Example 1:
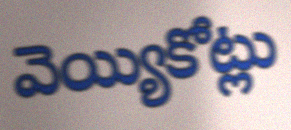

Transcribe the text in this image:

వెయ్యికోట్లు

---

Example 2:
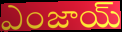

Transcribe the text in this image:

ఎంజాయ్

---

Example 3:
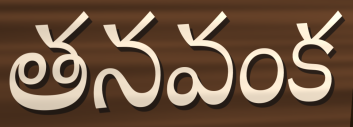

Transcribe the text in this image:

తనవంక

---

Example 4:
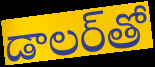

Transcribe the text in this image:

డాలర్‌తో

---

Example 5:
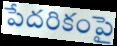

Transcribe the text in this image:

పేదరికంపై